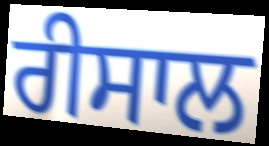
ਰੀਸਾਲ